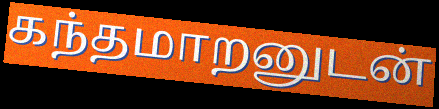
கந்தமாறனுடன்